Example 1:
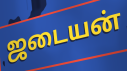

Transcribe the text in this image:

ஜடையன்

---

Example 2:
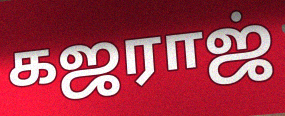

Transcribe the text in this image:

கஜராஜ்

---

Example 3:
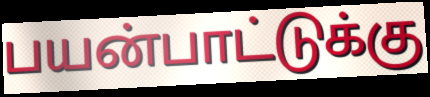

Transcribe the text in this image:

பயன்பாட்டுக்கு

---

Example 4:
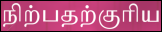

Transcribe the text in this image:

நிற்பதற்குரிய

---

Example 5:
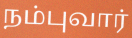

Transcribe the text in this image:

நம்புவார்